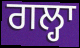
ਗਲ੍ਹ੍ਹਾ